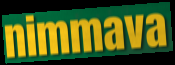
nimmava